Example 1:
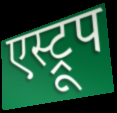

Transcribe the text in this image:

एस्ट्रूप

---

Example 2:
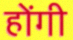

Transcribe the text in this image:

होंगी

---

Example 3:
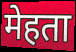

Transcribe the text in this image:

मेहता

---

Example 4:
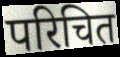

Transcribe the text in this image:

परिचित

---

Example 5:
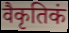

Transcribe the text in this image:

वैकृतिकं